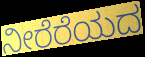
ನೀರೆರೆಯದ